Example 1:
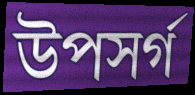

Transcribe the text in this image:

উপসর্গ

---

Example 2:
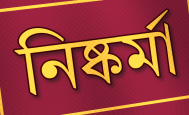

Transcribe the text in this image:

নিষ্কর্মা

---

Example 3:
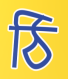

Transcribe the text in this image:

ঠি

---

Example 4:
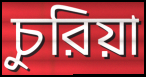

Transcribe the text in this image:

চুরিয়া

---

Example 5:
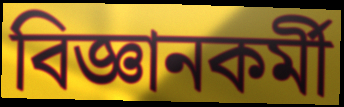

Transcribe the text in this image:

বিজ্ঞানকর্মী